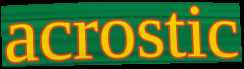
acrostic